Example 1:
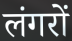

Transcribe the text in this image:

लंगरों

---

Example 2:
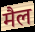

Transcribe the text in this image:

मैल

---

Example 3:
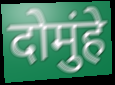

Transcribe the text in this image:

दोमुंहे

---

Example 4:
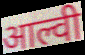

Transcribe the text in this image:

आल्वी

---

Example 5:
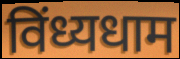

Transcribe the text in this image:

विंध्यधाम